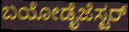
ಬಯೋಡೈಜೆಸ್ಟರ್